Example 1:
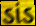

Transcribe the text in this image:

ડાંડ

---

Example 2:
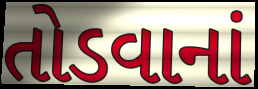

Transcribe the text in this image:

તોડવાનાં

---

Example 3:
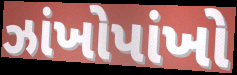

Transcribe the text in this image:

ઝાંખોપાંખો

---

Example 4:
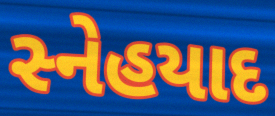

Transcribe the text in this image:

સ્નેહયાદ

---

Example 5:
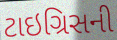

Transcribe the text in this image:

ટાઇગ્રિસની